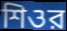
শিওর